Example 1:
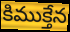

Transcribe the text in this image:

కిముక్తేన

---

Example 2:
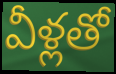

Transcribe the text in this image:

వీళ్లతో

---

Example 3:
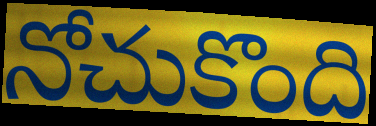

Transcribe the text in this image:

నోచుకొంది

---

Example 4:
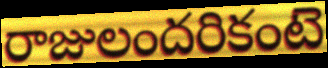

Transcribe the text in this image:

రాజులందరికంటె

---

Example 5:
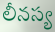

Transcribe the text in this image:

లీనస్య